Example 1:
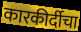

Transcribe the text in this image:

कारकीर्दीचा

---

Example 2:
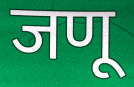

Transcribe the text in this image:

जणू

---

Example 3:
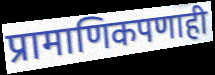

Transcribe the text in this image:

प्रामाणिकपणाही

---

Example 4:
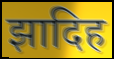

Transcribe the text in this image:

झादिह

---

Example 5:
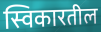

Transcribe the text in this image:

स्विकारतील